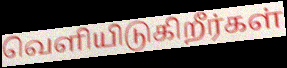
வெளியிடுகிறீர்கள்